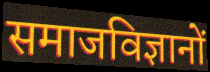
समाजविज्ञानों